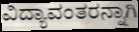
ವಿದ್ಯಾವಂತರನ್ನಾಗಿ